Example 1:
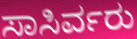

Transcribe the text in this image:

ಸಾಸಿರ್ವರು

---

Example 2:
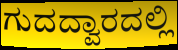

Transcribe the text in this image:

ಗುದದ್ವಾರದಲ್ಲಿ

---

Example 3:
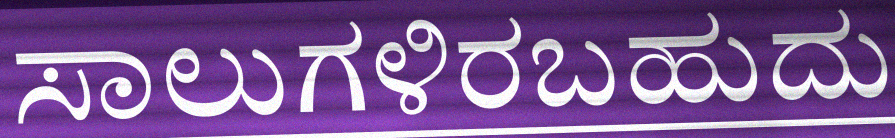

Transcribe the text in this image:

ಸಾಲುಗಳಿರಬಹುದು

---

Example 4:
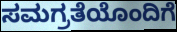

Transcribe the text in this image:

ಸಮಗ್ರತೆಯೊಂದಿಗೆ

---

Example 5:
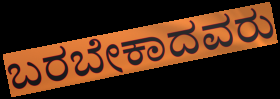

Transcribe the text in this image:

ಬರಬೇಕಾದವರು